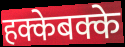
हक्केबक्के